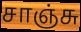
சாஞ்சு